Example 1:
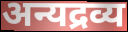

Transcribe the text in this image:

अन्यद्रव्य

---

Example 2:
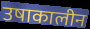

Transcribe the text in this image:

उषाकालीन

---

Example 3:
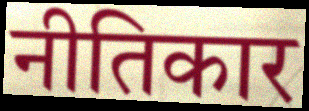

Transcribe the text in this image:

नीतिकार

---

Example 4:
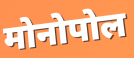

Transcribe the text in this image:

मोनोपोल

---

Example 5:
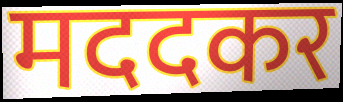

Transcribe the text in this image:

मददकर